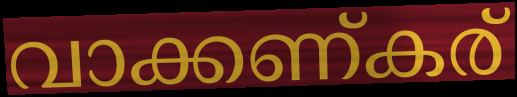
വാക്കണ്കര്